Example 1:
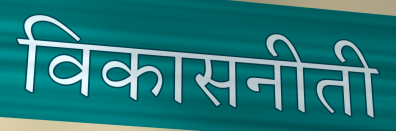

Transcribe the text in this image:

विकासनीती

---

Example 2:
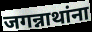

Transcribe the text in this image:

जगन्नाथांना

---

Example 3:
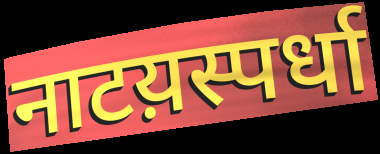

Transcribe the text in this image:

नाटय़स्पर्धा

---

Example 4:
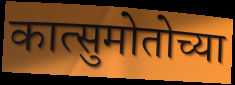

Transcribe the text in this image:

कात्सुमोतोच्या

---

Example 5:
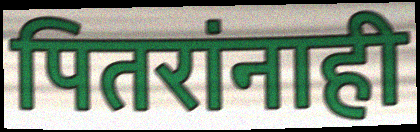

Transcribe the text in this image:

पितरांनाही